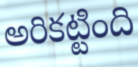
అరికట్టింది